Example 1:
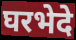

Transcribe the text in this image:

घरभेदे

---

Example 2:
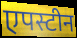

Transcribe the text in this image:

एपस्टीन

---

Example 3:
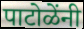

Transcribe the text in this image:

पाटोळेंनी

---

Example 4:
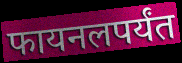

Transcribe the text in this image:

फायनलपर्यंत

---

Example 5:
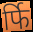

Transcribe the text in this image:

र्फि